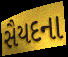
સૈયદના